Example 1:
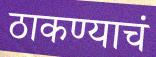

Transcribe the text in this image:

ठाकण्याचं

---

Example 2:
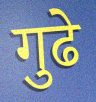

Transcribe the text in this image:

गुढे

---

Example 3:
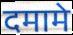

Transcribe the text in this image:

दमामे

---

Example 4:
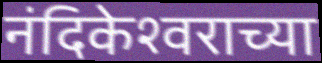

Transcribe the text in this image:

नंदिकेश्वराच्या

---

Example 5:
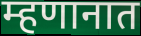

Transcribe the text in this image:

म्हणानात